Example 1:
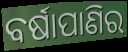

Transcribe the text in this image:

ବର୍ଷାପାଣିର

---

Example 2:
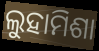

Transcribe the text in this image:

ଲୁହାମିଶା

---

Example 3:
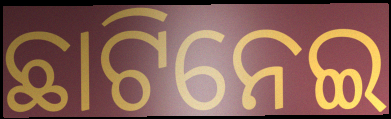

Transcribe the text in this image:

ଛାଟିନେଇ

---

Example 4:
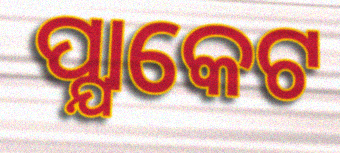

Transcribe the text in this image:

ପ୍ଯାକେଟ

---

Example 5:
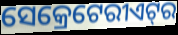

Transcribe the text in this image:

ସେକ୍ରେଟେରୀଏଟ୍‍ର